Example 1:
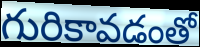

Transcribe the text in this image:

గురికావడంతో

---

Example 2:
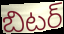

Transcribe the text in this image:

బిటర్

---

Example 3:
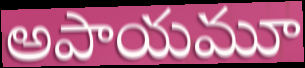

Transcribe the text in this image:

అపాయమూ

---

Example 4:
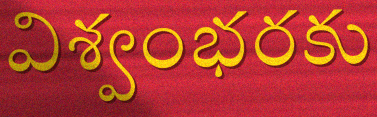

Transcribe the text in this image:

విశ్వంభరకు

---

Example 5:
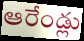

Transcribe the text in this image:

ఆరేండ్లు